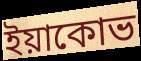
ইয়াকোভ